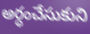
అర్ధంచేసుకుని